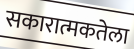
सकारात्मकतेला